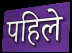
पहिले